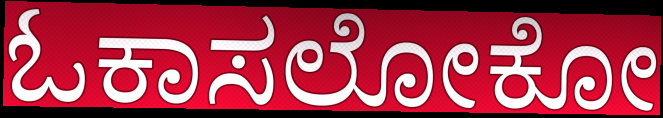
ಓಕಾಸಲೋಕೋ